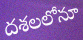
దశలలోనూ